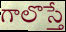
గాలొస్తే